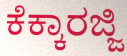
ಕೆಕ್ಕಾರಜ್ಜಿ